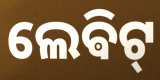
ଲେଵିଟ୍